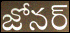
జోనర్